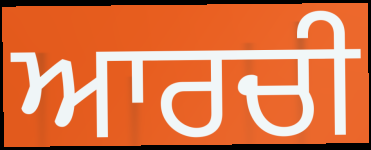
ਆਰਚੀ